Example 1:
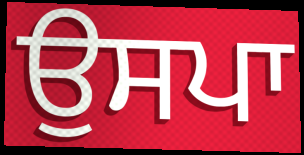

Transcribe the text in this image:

ਉਸਪਾ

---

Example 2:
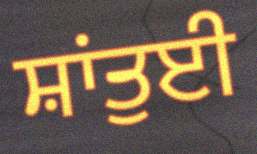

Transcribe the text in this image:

ਸ਼ਾਂਤੁਈ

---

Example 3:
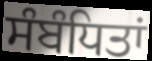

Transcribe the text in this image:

ਸੰਬੰਧਿਤਾਂ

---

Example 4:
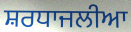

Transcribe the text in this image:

ਸ਼ਰਧਾਜਲੀਆ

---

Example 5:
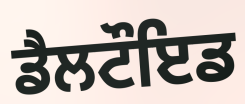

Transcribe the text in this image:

ਡੈਲਟੌਇਡ